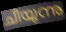
ചീയുന്നു